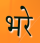
भरे